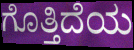
ಗೊತ್ತಿದೆಯ